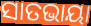
ସାତଭାୟା